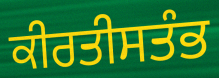
ਕੀਰਤੀਸਤੰਭ